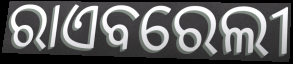
ରାଏବରେଲୀ